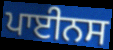
ਪਾਈਨਸ